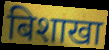
बिशाखा